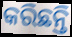
କରିଛନ୍ତି